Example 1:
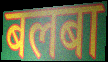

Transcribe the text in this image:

बलबा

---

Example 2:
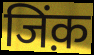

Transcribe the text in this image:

जिंक़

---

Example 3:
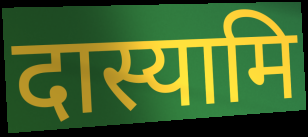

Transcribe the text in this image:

दास्यामि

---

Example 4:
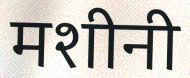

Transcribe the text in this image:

मशीनी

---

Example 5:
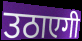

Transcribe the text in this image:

उठाएगी